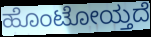
ಹೊಂಟೋಯ್ತದೆ